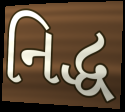
નિદ્ધ